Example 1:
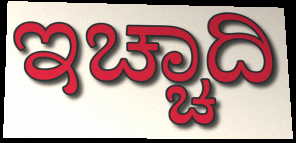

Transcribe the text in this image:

ಇಚ್ಚಾದಿ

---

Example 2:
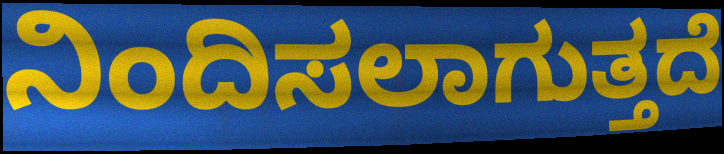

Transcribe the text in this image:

ನಿಂದಿಸಲಾಗುತ್ತದೆ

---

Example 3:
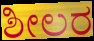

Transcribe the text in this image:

ಶೀಲರ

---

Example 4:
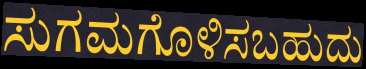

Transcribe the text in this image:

ಸುಗಮಗೊಳಿಸಬಹುದು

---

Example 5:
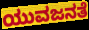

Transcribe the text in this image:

ಯುವಜನತೆ